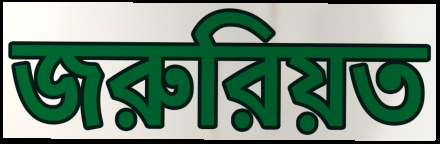
জরুরিয়ত